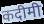
कदीमी